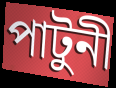
পাটুনী